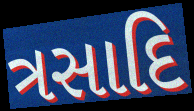
ત્રસાદિ